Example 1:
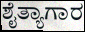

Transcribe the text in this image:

ಶೈತ್ಯಾಗಾರ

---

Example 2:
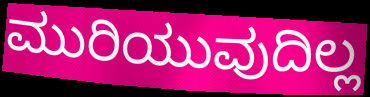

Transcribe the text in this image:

ಮುರಿಯುವುದಿಲ್ಲ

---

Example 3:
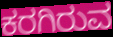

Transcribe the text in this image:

ಕರಗಿರುವ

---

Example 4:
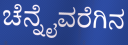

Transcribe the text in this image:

ಚೆನ್ನೈವರೆಗಿನ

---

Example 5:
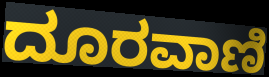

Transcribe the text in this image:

ದೂರವಾಣಿ